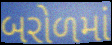
બરોળમાં